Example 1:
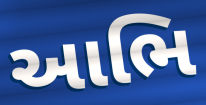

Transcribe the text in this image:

આભિ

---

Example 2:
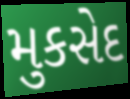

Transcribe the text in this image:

મુકસેદ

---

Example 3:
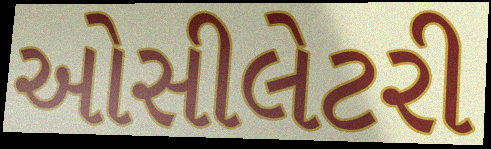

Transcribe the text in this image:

ઓસીલેટરી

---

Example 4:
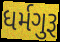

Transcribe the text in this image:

ધર્મગુરૂ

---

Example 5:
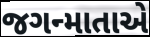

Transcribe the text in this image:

જગન્માતાએ